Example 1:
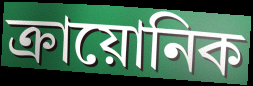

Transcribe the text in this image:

ক্রায়োনিক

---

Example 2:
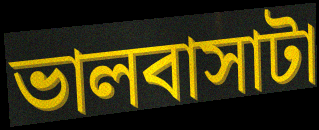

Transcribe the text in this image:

ভালবাসাটা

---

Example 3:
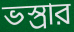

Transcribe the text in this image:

ভস্ত্রার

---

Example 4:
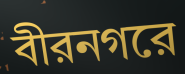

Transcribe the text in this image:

বীরনগরে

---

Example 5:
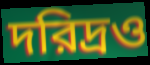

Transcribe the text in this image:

দরিদ্রও